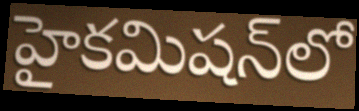
హైకమిషన్‌లో